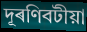
দূৰণিবটীয়া